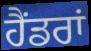
ਹੈਂਡਰਾਂ